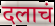
दलाचं